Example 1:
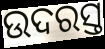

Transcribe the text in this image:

ଉଦରସ୍ତ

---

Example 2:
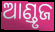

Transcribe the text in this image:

ଆଣ୍ଡୃଜ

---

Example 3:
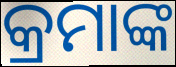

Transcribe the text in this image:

କ୍ରମାଙ୍କ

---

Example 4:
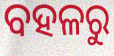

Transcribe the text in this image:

ବହଳରୁ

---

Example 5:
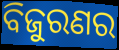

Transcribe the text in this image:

ବିଜୁରଣର